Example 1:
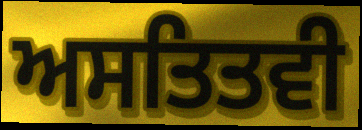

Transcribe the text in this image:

ਅਸਤਿਤਵੀ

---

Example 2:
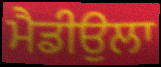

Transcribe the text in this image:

ਮੈਡੀਉਲਾ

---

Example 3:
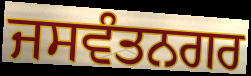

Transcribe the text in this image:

ਜਸਵੰਤਨਗਰ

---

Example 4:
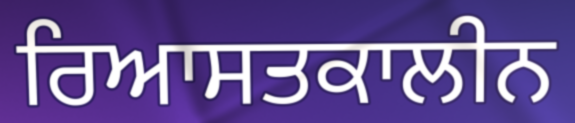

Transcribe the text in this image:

ਰਿਆਸਤਕਾਲੀਨ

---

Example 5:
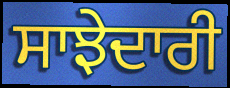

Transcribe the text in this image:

ਸਾਝੇਦਾਰੀ